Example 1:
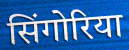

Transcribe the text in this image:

सिंगोरिया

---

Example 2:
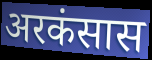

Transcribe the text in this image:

अरकंसास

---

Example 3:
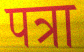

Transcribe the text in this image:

पत्रा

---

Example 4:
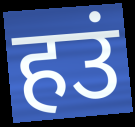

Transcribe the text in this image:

हउं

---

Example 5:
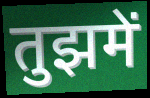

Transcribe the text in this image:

तुझमें